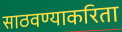
साठवण्याकरिता